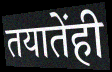
तयातेंही